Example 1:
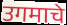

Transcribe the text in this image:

उगमाचे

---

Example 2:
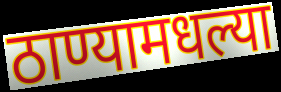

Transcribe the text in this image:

ठाण्यामधल्या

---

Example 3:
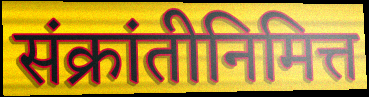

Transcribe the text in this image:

संक्रांतीनिमित्त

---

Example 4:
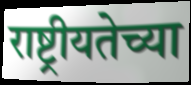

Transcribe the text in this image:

राष्ट्रीयतेच्या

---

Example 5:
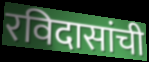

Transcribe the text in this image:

रविदासांची